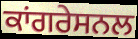
ਕਾਂਗਰੇਸਨਲ